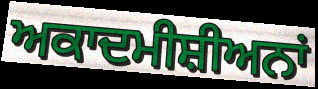
ਅਕਾਦਮੀਸ਼ੀਅਨਾਂ